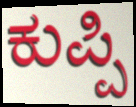
ಕುಪ್ಪಿ